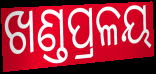
ଖଣ୍ଡପ୍ରଳୟ